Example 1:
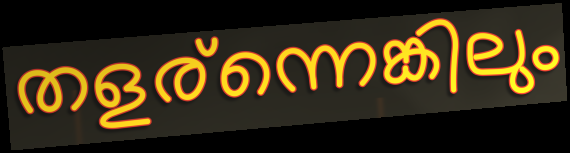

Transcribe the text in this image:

തളര്ന്നെങ്കിലും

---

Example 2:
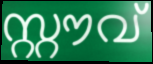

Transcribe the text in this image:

സ്റ്റൗവ്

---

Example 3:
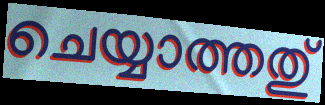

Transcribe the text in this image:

ചെയ്യാത്തതു്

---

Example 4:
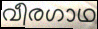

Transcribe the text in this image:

വീരഗാഥ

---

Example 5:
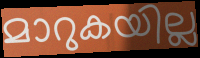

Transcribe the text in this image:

മാറുകയില്ല